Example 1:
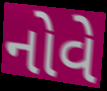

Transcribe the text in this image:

નોવે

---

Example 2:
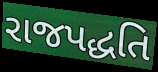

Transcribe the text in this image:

રાજપદ્ધતિ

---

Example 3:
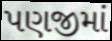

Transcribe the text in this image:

પણજીમાં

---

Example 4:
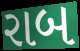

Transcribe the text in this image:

રાબ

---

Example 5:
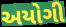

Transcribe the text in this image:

અયોગી